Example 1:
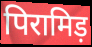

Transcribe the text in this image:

पिरामिड़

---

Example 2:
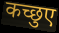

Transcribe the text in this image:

कच्छुए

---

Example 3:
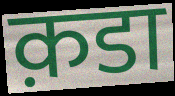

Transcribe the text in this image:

क़डा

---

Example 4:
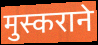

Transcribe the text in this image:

मुस्कराने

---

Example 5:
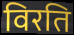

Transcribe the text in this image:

विरति